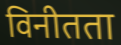
विनीतता